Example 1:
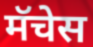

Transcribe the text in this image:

मॅचेस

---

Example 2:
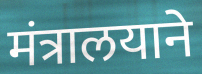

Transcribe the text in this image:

मंत्रालयाने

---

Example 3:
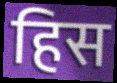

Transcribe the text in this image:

हिस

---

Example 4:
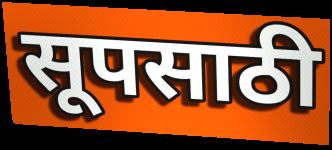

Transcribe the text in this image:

सूपसाठी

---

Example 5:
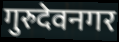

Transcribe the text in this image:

गुरुदेवनगर